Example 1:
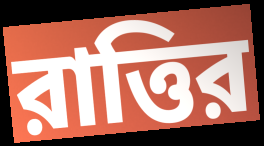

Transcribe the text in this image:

রাত্তির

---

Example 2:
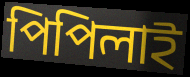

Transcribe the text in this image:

পিপিলাই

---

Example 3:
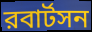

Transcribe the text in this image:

রবার্টসন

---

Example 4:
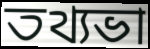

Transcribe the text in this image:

তথ্যভা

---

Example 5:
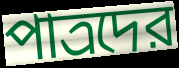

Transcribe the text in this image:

পাত্রদের